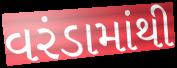
વરંડામાંથી